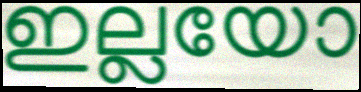
ഇല്ലയോ